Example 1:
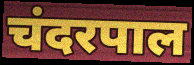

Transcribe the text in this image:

चंदरपाल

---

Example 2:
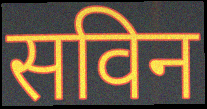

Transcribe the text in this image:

सविन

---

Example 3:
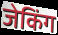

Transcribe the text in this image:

जेकिंग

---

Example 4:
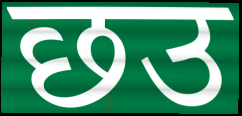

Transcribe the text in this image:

छउ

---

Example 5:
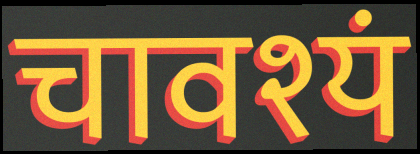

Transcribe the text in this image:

चावश्यं